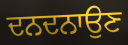
ਦਨਦਨਾਉਣ